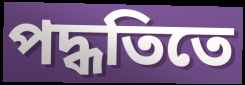
পদ্ধতিতে